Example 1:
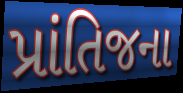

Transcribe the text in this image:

પ્રાંતિજના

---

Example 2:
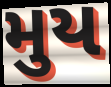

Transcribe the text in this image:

મુય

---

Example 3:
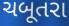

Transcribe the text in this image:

ચબૂતરા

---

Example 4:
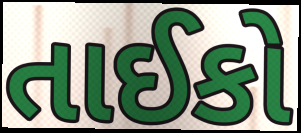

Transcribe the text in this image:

તાઈકો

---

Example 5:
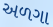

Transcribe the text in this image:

અળગા